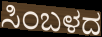
ಸಿಂಬಳದ